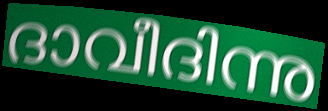
ദാവീദിന്നു